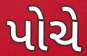
પોચે